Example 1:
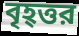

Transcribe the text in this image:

বৃহ্ত্তর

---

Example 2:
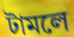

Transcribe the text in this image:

টামলে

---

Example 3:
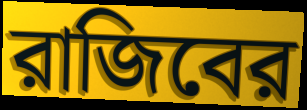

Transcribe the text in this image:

রাজিবের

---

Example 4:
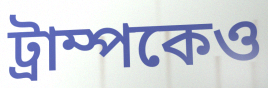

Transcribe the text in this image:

ট্রাম্পকেও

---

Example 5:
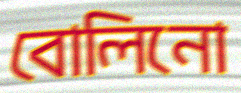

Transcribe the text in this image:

বোলিনো